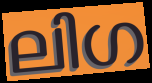
ലിഗ